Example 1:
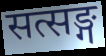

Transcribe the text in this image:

सत्सङ्ग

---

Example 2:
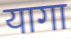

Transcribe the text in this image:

यागा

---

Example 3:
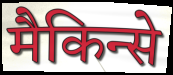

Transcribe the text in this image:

मैकिन्से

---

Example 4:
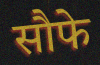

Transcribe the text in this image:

सौफे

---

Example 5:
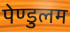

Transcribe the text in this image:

पेण्डुलम